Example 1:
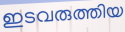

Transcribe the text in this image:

ഇടവരുത്തിയ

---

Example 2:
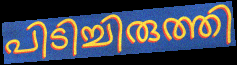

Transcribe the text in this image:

പിടിച്ചിരുത്തി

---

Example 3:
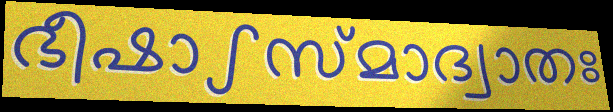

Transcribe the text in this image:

ഭീഷാഽസ്മാദ്വാതഃ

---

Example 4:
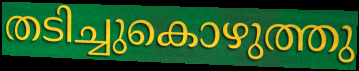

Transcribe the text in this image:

തടിച്ചുകൊഴുത്തു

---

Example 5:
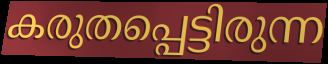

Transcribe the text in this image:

കരുതപ്പെട്ടിരുന്ന